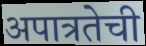
अपात्रतेची